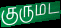
குருமட